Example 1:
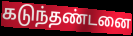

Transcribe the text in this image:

கடுந்தண்டனை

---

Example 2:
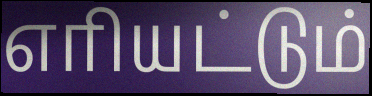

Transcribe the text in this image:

எரியட்டும்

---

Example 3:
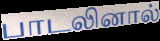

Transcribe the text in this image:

பாடலினால்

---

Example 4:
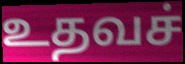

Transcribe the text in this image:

உதவச்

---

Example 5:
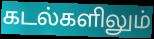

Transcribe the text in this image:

கடல்களிலும்